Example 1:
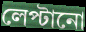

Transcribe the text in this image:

লেপ্টানো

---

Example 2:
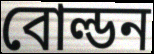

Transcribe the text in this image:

বোল্ডন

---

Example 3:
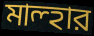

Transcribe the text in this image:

মাল্হার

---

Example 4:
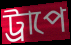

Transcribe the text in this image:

ট্রাপে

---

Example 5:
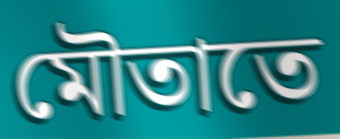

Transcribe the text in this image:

মৌতাতে